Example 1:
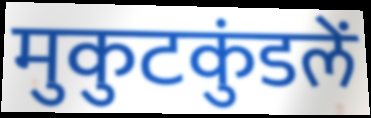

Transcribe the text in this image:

मुकुटकुंडलें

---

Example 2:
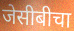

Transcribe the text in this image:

जेसीबीचा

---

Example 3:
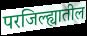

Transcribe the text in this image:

परजिल्ह्यातील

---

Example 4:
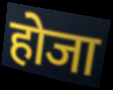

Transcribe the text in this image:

होजा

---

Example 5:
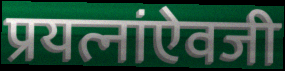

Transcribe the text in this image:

प्रयत्नांऐवजी